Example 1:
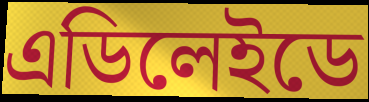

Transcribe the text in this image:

এডিলেইডে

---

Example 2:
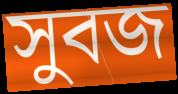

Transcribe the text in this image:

সুবজ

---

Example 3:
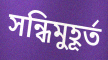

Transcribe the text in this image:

সন্ধিমুহূর্ত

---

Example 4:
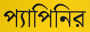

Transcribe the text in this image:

প্যাপিনির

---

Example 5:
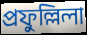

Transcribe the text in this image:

প্রফুল্লিলা